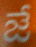
జే